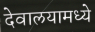
देवालयामध्ये